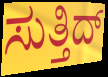
ಸುತ್ತಿದ್